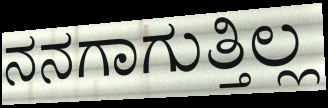
ನನಗಾಗುತ್ತಿಲ್ಲ